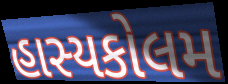
હાસ્યકોલમ